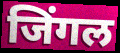
जिंगल